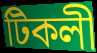
টিকলী